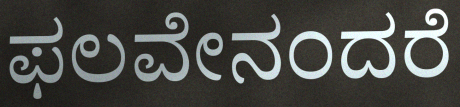
ಫಲವೇನಂದರೆ